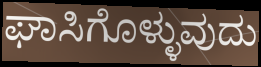
ಘಾಸಿಗೊಳ್ಳುವುದು